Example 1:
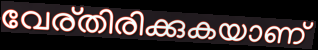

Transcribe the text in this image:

വേര്തിരിക്കുകയാണ്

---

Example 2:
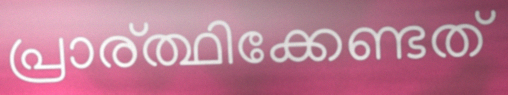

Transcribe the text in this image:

പ്രാര്ത്ഥിക്കേണ്ടത്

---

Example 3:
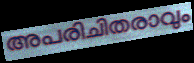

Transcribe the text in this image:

അപരിചിതരാവും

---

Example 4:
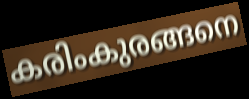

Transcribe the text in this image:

കരിംകുരങ്ങനെ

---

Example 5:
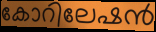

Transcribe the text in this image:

കോറിലേഷൻ